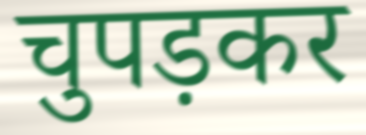
चुपड़कर